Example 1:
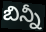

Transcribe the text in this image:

బిన్నీ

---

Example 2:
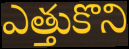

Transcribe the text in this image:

ఎత్తుకొని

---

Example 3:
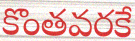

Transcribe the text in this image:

కొంతవరకే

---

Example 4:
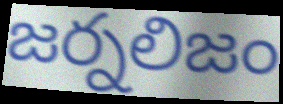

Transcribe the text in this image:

జర్నలిజం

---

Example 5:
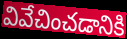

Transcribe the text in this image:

వివేచించడానికి